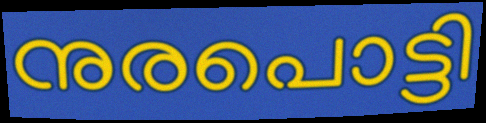
നുരപൊട്ടി